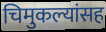
चिमुकल्यांसह